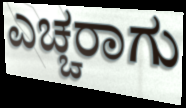
ಎಚ್ಚರಾಗು